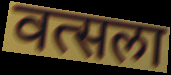
वत्सला